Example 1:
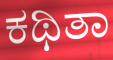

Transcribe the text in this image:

ಕಥಿತಾ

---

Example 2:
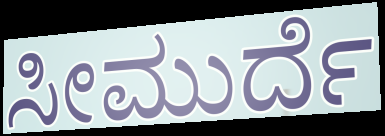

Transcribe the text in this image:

ಸೀಮುರ್ದೆ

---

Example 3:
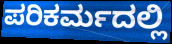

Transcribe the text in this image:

ಪರಿಕರ್ಮದಲ್ಲಿ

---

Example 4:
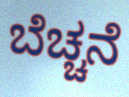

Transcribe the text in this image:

ಬೆಚ್ಚನೆ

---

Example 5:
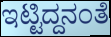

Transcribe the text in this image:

ಇಟ್ಟಿದ್ದನಂತೆ